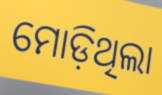
ମୋଡ଼ିଥିଲା